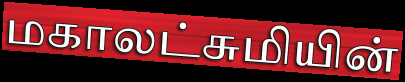
மகாலட்சுமியின்